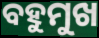
ବହୁମୁଖ